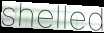
shelled